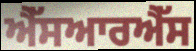
ਐੱਸਆਰਐੱਸ